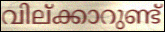
വില്ക്കാറുണ്ട്